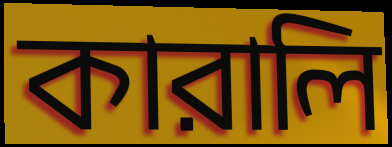
কারালি